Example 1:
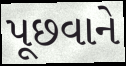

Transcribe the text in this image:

પૂછવાને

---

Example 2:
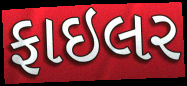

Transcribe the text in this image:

ફાઇલર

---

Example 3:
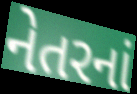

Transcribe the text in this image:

નેતરનાં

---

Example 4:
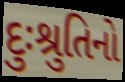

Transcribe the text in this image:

દુઃશ્રુતિનો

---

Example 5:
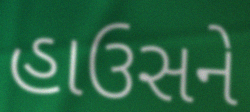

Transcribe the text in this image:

હાઉસને